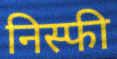
निस्फी